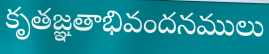
కృతజ్ఞతాభివందనములు